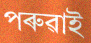
পৰুৱাই